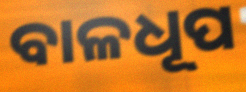
ବାଳଧୂପ